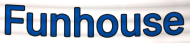
Funhouse